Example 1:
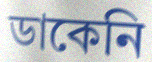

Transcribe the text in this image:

ডাকেনি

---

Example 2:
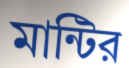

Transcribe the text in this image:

মান্টির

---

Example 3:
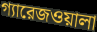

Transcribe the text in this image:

গ্যারেজওয়ালা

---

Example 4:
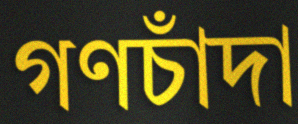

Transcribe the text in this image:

গণচাঁদা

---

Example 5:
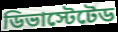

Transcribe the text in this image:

ডিভাস্টেটেড